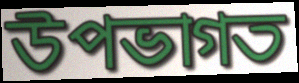
উপভাগত